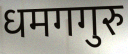
धमगगुरु